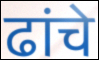
ढांचे